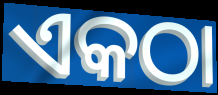
ଏକଠା